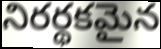
నిరర్థకమైన